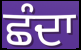
ਛੰਦਾ